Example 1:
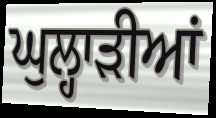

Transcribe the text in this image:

ਘੁਲ੍ਹਾੜੀਆਂ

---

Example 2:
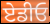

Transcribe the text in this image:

ਏਡੀਓ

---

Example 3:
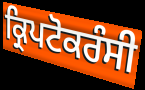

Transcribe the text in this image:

ਕ੍ਰਿਪਟੋਕਰੰਸੀ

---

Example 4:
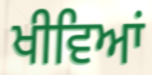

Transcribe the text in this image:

ਖੀਵਿਆਂ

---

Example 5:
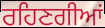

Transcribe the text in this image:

ਰਹਿਣਗੀਆਂ